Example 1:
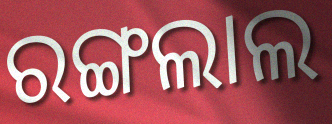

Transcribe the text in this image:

ରଙ୍ଗଲାଲ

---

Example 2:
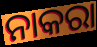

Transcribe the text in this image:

ନାକରା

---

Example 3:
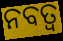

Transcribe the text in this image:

ନବତ୍ଵ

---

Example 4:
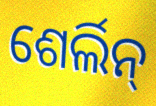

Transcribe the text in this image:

ଶେର୍ଲିନ୍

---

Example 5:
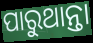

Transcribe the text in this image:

ପାରୁଥାନ୍ତା